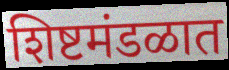
शिष्टमंडळात